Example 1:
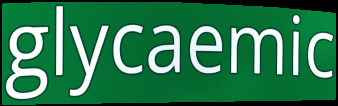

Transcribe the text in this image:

glycaemic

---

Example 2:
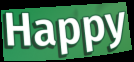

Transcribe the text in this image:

Happy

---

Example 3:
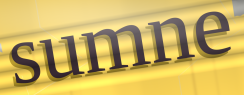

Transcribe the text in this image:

sumne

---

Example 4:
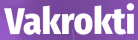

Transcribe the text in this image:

Vakrokti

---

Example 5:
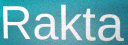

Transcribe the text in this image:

Rakta